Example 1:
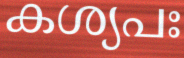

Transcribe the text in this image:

കശ്യപഃ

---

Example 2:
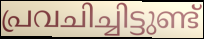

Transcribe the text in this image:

പ്രവചിച്ചിട്ടുണ്ട്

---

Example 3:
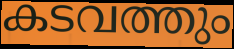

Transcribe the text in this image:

കടവത്തും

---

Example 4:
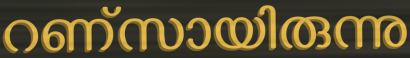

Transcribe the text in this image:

റണ്സായിരുന്നു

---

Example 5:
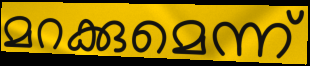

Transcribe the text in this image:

മറക്കുമെന്ന്